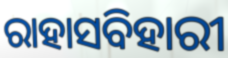
ରାହାସବିହାରୀ